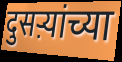
दुसऱ्‍यांच्या